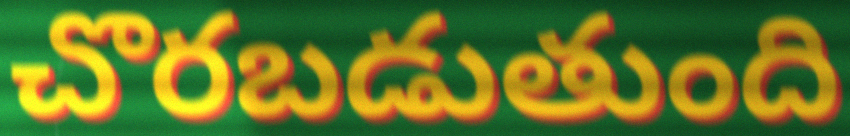
చొరబడుతుంది